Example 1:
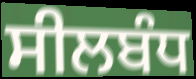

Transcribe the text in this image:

ਸੀਲਬੰਧ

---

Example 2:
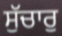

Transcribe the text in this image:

ਸੁੱਚਾਰੁ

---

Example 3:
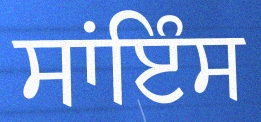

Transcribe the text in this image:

ਸਾਂਇੰਸ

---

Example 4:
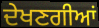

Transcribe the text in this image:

ਦੇਖਣਗੀਆਂ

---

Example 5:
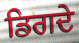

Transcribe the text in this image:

ਡਿਗਦੇ